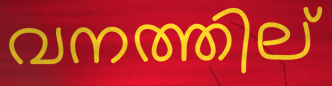
വനത്തില്